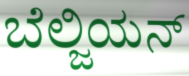
ಬೆಲ್ಜಿಯನ್